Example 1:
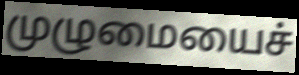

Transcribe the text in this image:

முழுமையைச்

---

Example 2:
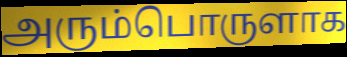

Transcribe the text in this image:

அரும்பொருளாக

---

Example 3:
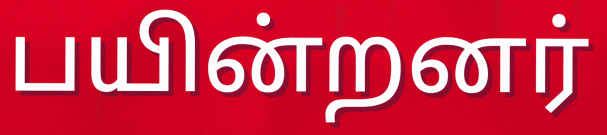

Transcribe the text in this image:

பயின்றனர்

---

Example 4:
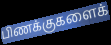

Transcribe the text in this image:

பிணக்குகளைக்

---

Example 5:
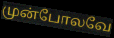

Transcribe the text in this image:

முன்போலவே